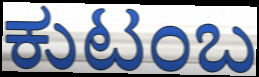
ಕುಟಂಬ